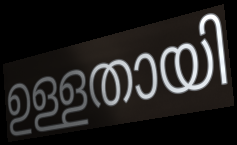
ഉള്ളതായി